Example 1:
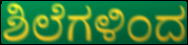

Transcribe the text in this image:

ಶಿಲೆಗಳಿಂದ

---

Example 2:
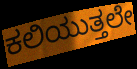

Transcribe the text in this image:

ಕಲಿಯುತ್ತಲೇ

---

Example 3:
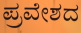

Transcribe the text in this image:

ಪ್ರವೇಶದ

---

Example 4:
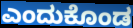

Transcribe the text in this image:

ಎಂದುಕೊಂಡ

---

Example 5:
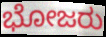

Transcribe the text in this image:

ಭೋಜರು